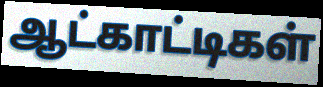
ஆட்காட்டிகள்